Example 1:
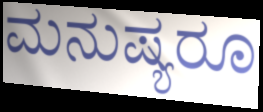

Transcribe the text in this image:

ಮನುಷ್ಯರೂ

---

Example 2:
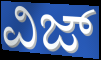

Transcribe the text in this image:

ವಿಜ್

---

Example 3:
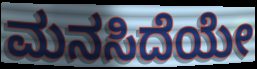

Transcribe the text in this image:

ಮನಸಿದೆಯೇ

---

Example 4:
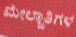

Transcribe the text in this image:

ಮೇಲ್ಜಾತಿಗಳ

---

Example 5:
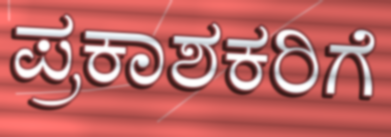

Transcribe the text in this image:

ಪ್ರಕಾಶಕರಿಗೆ